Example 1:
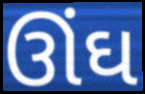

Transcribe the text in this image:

ઊંઘ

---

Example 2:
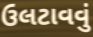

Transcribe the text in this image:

ઉલટાવવું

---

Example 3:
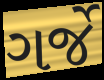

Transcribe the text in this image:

ગર્જે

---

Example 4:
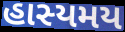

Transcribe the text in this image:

હાસ્યમય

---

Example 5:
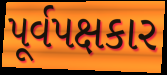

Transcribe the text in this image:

પૂર્વપક્ષકાર